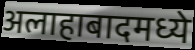
अलाहाबादमध्ये